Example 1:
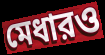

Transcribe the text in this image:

মেধারও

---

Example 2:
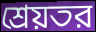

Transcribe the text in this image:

শ্রেয়তর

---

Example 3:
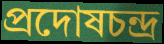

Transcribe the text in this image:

প্রদোষচন্দ্র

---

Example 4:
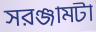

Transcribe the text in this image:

সরঞ্জামটা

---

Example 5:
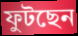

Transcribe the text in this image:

ফুটছেন